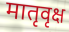
मातृवृक्ष